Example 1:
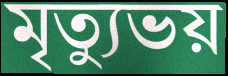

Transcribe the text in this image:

মৃত্যুভয়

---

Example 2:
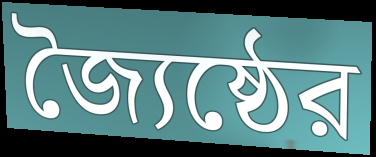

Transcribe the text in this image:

জ্যৈষ্ঠের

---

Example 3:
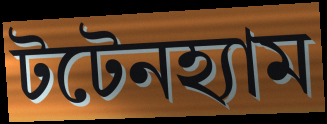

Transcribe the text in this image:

টটেনহ্যাম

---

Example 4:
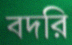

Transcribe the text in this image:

বদরি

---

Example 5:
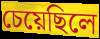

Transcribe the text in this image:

চেয়েছিলে